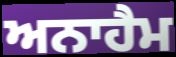
ਅਨਾਹੈਮ